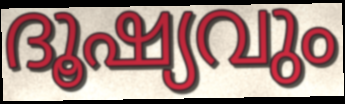
ദൂഷ്യവും